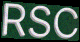
RSC